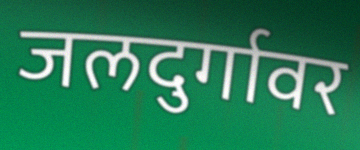
जलदुर्गावर